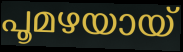
പൂമഴയായ്